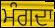
ਮੰਗਦਾ